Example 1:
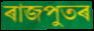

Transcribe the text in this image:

ৰাজপুতৰ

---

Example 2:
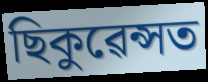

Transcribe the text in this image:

ছিকুৱেন্সত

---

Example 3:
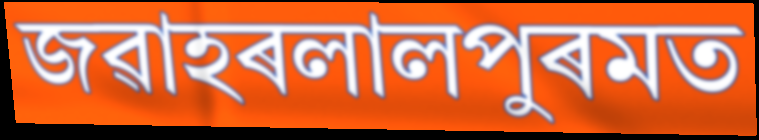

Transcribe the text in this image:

জৱাহৰলালপুৰমত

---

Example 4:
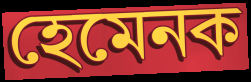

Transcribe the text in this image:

হেমেনক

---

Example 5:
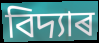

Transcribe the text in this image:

বিদ্যাৰ